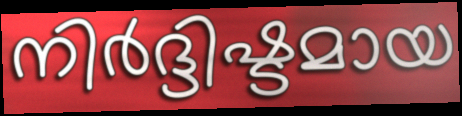
നിർദ്ദിഷ്ടമായ